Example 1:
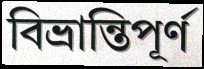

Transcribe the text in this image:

বিভ্রান্তিপূর্ণ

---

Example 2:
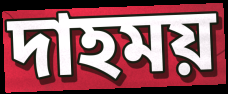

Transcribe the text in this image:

দাহময়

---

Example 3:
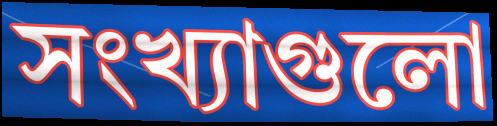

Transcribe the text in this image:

সংখ্যাগুলো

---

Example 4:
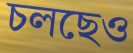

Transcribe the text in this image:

চলছেও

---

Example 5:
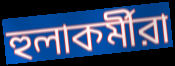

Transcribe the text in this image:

হুলাকর্মীরা